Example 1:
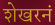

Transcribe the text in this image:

शेखरनं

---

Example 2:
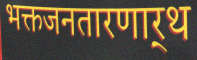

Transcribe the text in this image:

भक्तजनतारणार्थ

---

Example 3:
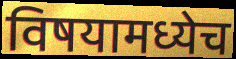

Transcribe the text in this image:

विषयामध्येच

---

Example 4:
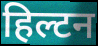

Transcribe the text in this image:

हिल्टन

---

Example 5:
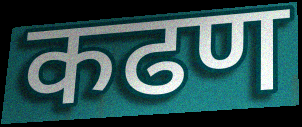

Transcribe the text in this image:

कढण